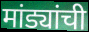
मांड्यांची